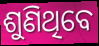
ଶୁଣିଥିବେ